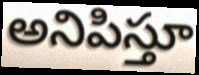
అనిపిస్తూ